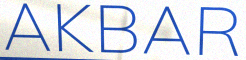
AKBAR